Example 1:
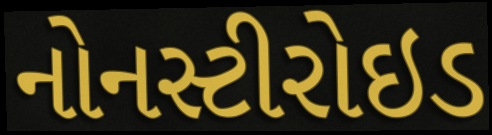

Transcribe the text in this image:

નોનસ્ટીરોઇડ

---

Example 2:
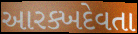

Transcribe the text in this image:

આરક્ખદેવતા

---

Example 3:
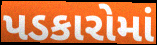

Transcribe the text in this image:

પડકારોમાં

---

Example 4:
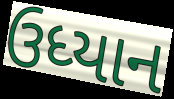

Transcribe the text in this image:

ઉધ્યાન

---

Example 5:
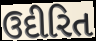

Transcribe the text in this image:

ઉદીરિત